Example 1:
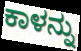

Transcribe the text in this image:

ಕಾಳನ್ನು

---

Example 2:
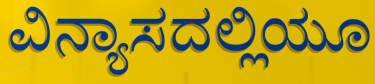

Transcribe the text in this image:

ವಿನ್ಯಾಸದಲ್ಲಿಯೂ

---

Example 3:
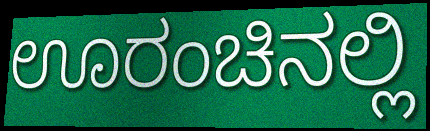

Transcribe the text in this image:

ಊರಂಚಿನಲ್ಲಿ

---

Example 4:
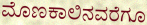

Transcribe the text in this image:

ಮೊಣಕಾಲಿನವರೆಗೂ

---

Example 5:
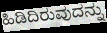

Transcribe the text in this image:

ಹಿಡಿದಿರುವುದನ್ನು